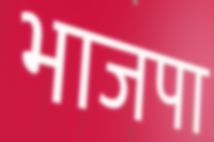
भाजपा